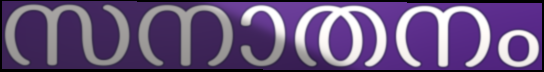
സനാതനം